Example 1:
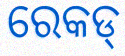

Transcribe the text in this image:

ରେକଡ୍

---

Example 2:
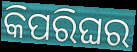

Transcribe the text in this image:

କିପରିଘର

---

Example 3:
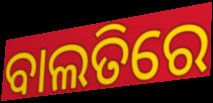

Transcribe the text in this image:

ବାଲତିରେ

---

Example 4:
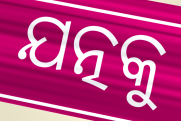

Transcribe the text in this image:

ଯତ୍ନକୁ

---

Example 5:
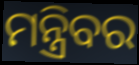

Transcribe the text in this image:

ମନ୍ତ୍ରିବର